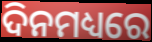
ଦିନମଧ୍ୟରେ